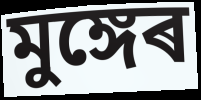
মুঙ্গেৰ